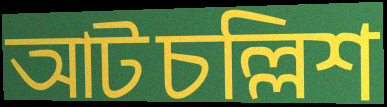
আটচল্লিশ